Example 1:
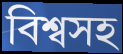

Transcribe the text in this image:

বিশ্বসহ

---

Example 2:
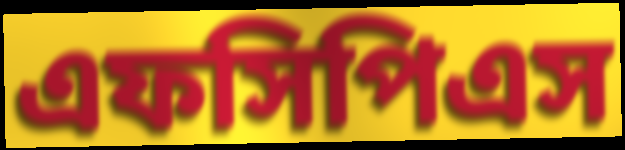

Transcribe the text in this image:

এফসিপিএস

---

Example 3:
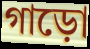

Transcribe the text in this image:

গাড়ো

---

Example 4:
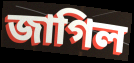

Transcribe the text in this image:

জাগিল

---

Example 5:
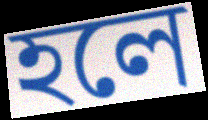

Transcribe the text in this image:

হলে